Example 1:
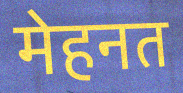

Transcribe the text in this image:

मेहनत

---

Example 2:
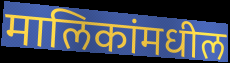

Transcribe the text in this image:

मालिकांमधील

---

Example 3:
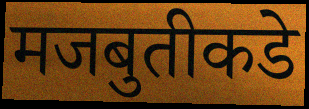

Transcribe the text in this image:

मजबुतीकडे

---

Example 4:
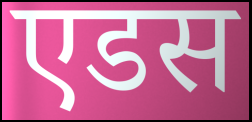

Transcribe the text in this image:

एडस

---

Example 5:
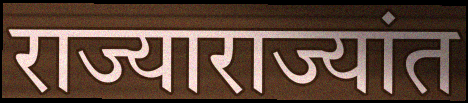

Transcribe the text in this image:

राज्याराज्यांत